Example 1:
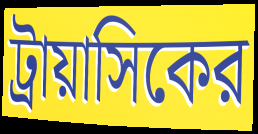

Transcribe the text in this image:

ট্রায়াসিকের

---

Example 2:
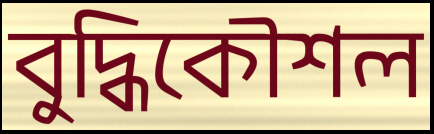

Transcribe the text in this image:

বুদ্ধিকৌশল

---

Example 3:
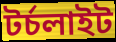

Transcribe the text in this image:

টর্চলাইট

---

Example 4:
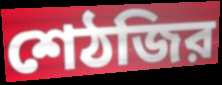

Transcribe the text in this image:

শেঠজির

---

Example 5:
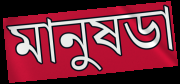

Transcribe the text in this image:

মানুষডা